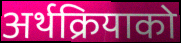
अर्थक्रियाको